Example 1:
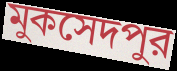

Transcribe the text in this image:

মুকসেদপুর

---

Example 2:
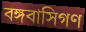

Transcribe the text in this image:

বঙ্গবাসিগণ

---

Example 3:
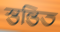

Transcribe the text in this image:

স্তন্তিত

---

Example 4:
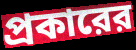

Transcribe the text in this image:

প্রকারের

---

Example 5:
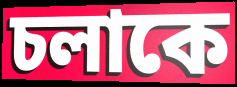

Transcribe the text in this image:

চলাকে